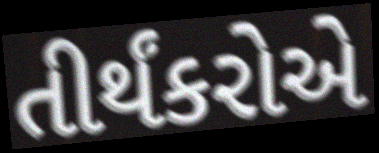
તીર્થંકરોએ